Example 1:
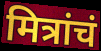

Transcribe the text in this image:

मित्रांचं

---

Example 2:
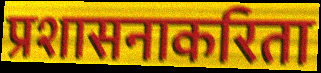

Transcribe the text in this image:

प्रशासनाकरिता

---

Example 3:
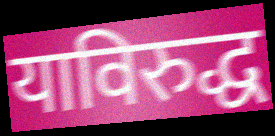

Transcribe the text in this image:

याविरुद्ध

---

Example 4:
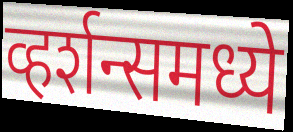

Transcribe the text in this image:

व्हर्शन्समध्ये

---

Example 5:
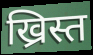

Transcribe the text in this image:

ख्रिस्त